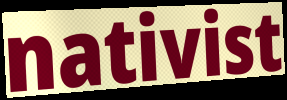
nativist